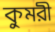
কুমরী